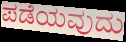
ಪಡೆಯವುದು